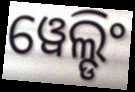
ୱେଲ୍ଡିଂ